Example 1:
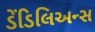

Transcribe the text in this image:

ડેંડિલિઅન્સ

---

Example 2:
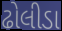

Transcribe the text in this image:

ઢોલીડા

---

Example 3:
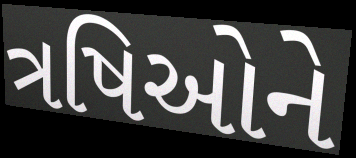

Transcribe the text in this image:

ત્રષિઓને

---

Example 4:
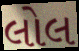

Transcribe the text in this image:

લોલ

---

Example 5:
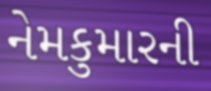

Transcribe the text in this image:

નેમકુમારની